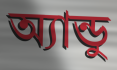
অ্যান্ডু